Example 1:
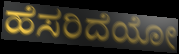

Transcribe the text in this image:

ಹೆಸರಿದೆಯೋ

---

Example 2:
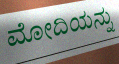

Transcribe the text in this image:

ಮೋದಿಯನ್ನು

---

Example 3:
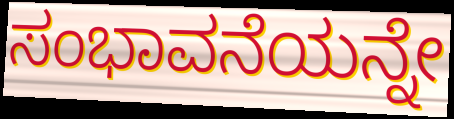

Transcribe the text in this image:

ಸಂಭಾವನೆಯನ್ನೇ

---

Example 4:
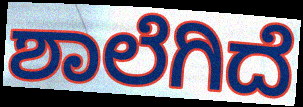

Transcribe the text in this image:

ಶಾಲೆಗಿದೆ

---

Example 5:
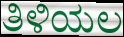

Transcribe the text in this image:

ತಿಳಿಯಲ